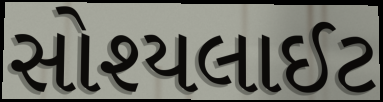
સોશ્યલાઈટ